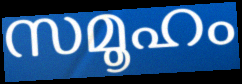
സമൂഹം